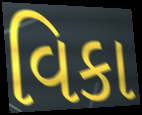
વિકા